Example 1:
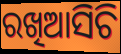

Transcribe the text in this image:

ରଖିଆସିଚି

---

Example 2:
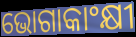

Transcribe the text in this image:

ଭୋଗାକାଂକ୍ଷୀ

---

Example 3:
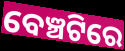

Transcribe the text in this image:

ବେଞ୍ଚଟିରେ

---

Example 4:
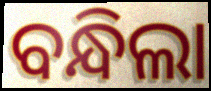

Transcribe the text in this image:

ବନ୍ଧିଲା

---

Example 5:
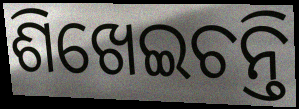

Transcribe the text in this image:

ଶିଖେଇଚନ୍ତି